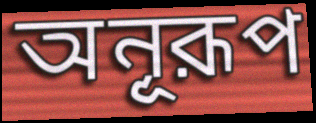
অনূরূপ